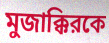
মুজাক্কিরকে